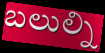
బలుల్ని